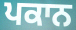
ਪਕਾਨ